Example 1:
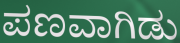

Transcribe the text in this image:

ಪಣವಾಗಿಡು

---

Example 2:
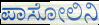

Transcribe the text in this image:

ಪಾಸೋಲಿನಿ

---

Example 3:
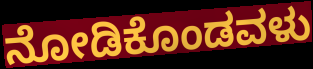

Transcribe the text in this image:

ನೋಡಿಕೊಂಡವಳು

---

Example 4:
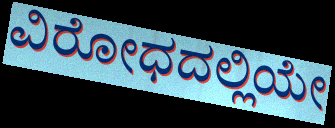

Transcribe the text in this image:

ವಿರೋಧದಲ್ಲಿಯೇ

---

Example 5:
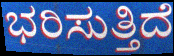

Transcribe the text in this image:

ಭರಿಸುತ್ತಿದೆ